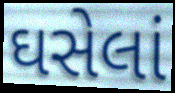
ઘસેલાં